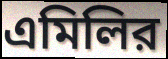
এমিলির